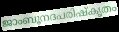
ജാംബൂനദപരിഷ്കൃതം